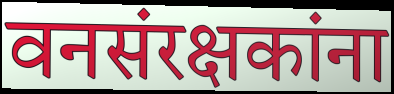
वनसंरक्षकांना